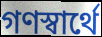
গণস্বার্থে